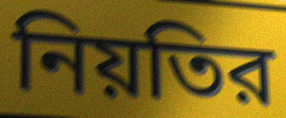
নিয়তির